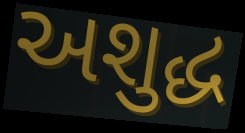
અશુદ્ધ